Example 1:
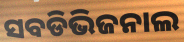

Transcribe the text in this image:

ସବଡିଭିଜନାଲ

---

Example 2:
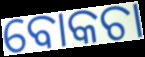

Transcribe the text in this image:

ବୋକଚା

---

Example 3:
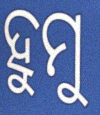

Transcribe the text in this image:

ହୁମୁ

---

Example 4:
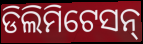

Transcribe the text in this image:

ଡିଲିମିଟେସନ୍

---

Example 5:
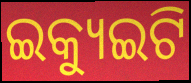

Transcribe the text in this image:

ଇକ୍ୟୁଇଟି